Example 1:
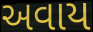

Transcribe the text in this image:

અવાય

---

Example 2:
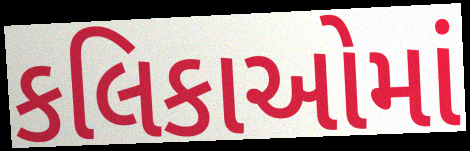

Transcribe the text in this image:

કલિકાઓમાં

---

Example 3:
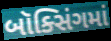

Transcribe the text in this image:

બૉક્સિંગમાં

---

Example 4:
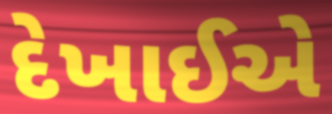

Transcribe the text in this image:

દેખાઈએ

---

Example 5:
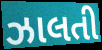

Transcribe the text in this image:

ઝાલતી